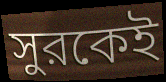
সুরকেই